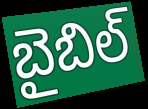
బైబిల్